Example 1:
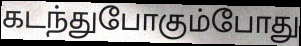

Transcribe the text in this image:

கடந்துபோகும்போது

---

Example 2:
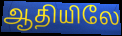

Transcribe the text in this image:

ஆதியிலே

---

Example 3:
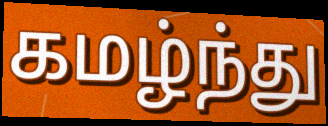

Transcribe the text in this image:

கமழ்ந்து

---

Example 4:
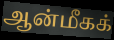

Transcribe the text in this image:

ஆன்மீகக்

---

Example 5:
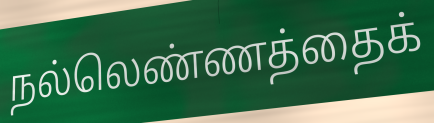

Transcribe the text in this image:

நல்லெண்ணத்தைக்